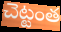
చెట్టంత